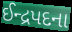
ઈન્દ્રપદના